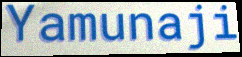
Yamunaji